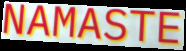
NAMASTE